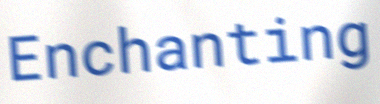
Enchanting